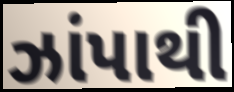
ઝાંપાથી